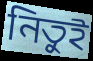
নিতুই